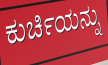
ಕುರ್ಚಿಯನ್ನು